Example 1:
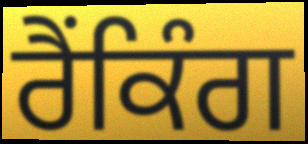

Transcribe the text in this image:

ਰੈੰਕਿੰਗ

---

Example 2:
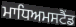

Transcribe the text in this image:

ਮਾਧਿਅਮਸਟੈਂਡ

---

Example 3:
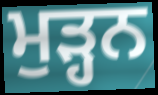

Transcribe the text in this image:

ਮੁੜ੍ਹਨ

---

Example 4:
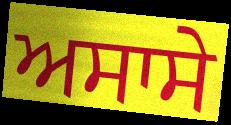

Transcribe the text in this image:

ਅਸਾਸੇ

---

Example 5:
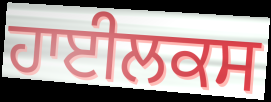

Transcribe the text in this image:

ਹਾਈਲਕਸ